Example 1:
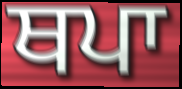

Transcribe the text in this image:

ਥਪਾ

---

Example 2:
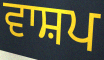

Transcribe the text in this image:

ਵਾਸ਼ਪ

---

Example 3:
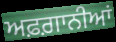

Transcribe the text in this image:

ਅਫ਼ਗ਼ਾਨੀਆਂ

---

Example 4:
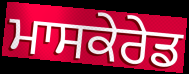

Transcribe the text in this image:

ਮਾਸਕੇਰੇਡ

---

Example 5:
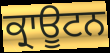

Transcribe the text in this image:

ਕ੍ਰਾਊਟਨ